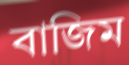
বাজিম